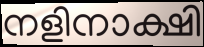
നളിനാക്ഷി